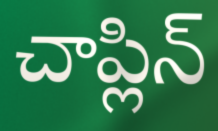
చాప్లిన్